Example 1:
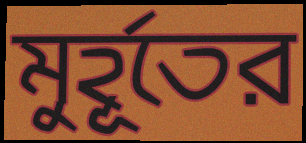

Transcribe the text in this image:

মুর্হূতের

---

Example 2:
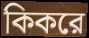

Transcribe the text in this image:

কিকরে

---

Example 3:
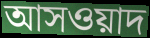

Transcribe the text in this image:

আসওয়াদ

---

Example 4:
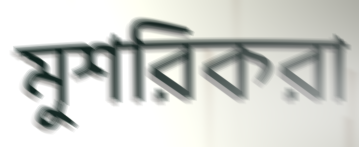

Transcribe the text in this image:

মুশরিকরা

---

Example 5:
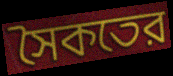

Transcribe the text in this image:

সৈকতের